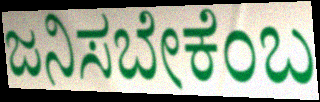
ಜನಿಸಬೇಕೆಂಬ